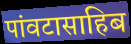
पांवटासाहिब